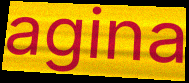
agina